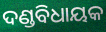
ଦଣ୍ଡବିଧାୟକ